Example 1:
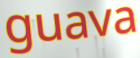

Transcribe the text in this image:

guava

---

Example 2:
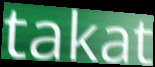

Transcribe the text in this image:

takat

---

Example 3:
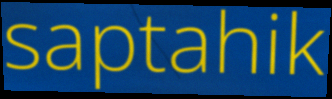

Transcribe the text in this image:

saptahik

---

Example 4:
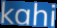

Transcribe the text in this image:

kahi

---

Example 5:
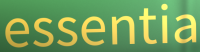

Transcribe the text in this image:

essentia